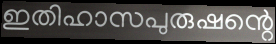
ഇതിഹാസപുരുഷന്റെ